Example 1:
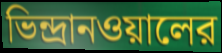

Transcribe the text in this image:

ভিন্দ্রানওয়ালের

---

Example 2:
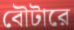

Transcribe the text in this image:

বৌটারে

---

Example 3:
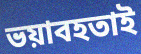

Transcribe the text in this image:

ভয়াবহতাই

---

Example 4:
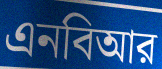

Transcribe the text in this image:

এনবিআর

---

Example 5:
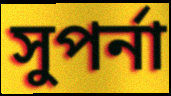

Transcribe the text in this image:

সুপর্না